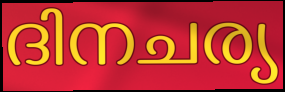
ദിനചര്യ